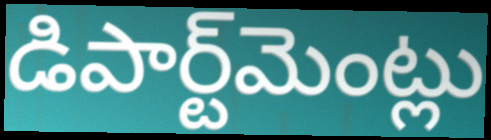
డిపార్ట్‌మెంట్లు